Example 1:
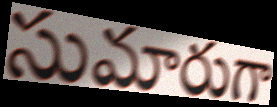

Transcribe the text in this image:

సుమారుగా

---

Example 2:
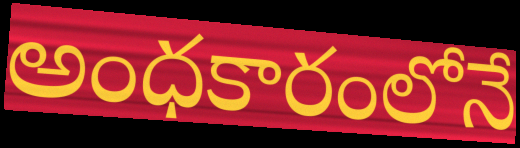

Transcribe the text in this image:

అంధకారంలోనే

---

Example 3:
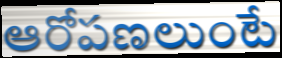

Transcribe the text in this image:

ఆరోపణలుంటే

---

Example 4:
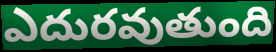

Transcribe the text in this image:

ఎదురవుతుంది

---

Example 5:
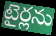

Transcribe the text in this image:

టైర్లను